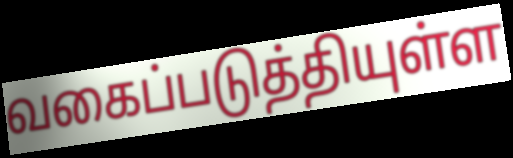
வகைப்படுத்தியுள்ள